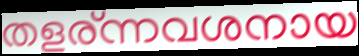
തളര്ന്നവശനായ